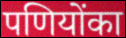
पणियोंका